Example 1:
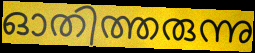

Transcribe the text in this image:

ഓതിത്തരുന്നു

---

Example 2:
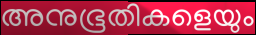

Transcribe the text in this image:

അനുഭൂതികളെയും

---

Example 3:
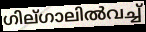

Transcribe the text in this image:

ഗില്ഗാലിൽവച്ച്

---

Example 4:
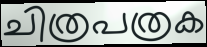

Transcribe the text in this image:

ചിത്രപത്രക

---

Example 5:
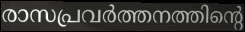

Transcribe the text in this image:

രാസപ്രവർത്തനത്തിന്റെ